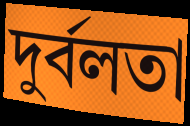
দুৰ্বলতা